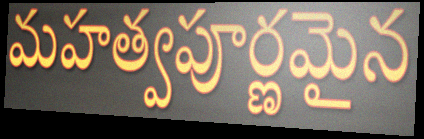
మహత్వపూర్ణమైన